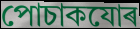
পোচাকযোৰ